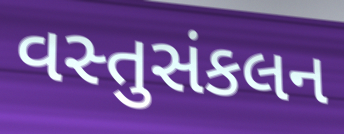
વસ્તુસંકલન